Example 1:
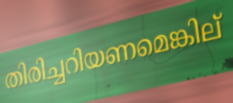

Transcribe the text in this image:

തിരിച്ചറിയണമെങ്കില്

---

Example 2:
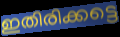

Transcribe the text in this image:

ഇതിരിക്കട്ടെ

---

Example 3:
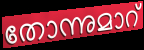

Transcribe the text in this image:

തോന്നുമാറ്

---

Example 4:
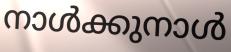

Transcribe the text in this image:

നാൾക്കുനാൾ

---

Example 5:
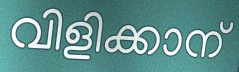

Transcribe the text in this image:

വിളിക്കാന്